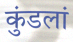
कुंडलां